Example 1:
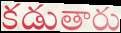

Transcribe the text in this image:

కడుతారు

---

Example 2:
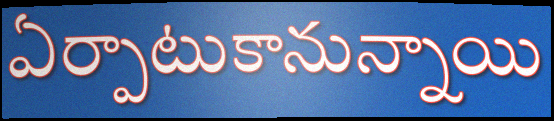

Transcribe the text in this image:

ఏర్పాటుకానున్నాయి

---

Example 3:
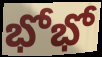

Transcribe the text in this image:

భోభో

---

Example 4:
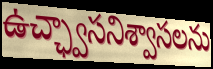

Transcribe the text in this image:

ఉచ్ఛ్వాసనిశ్వాసలను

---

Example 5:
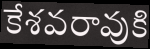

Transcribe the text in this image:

కేశవరావుకి